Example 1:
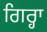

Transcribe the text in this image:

ਗਿਰ੍ਹਾ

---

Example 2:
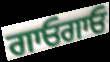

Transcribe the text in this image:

ਗਾਓਗਾਓ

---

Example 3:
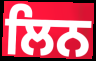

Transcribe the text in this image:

ਲਿਨ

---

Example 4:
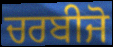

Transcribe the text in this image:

ਚਰਬੀਜੋ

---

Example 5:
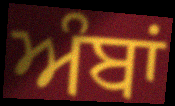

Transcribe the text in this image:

ਅੰਬਾਂ